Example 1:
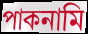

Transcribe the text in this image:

পাকনামি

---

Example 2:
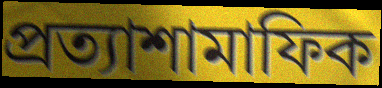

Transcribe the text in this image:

প্রত্যাশামাফিক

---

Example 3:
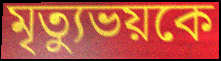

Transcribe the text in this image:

মৃত্যুভয়কে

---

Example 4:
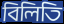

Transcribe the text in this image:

বিলিতি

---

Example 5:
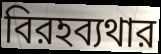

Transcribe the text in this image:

বিরহব্যথার